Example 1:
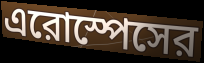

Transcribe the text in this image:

এরোস্পেসের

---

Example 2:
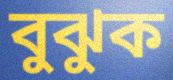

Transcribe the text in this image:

বুঝুক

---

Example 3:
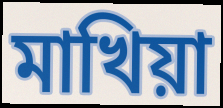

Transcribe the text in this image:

মাখিয়া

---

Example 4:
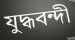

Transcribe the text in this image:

যুদ্ধবন্দী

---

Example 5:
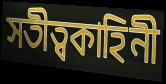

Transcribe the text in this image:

সতীত্বকাহিনী